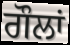
ਗੌਲਾਂ